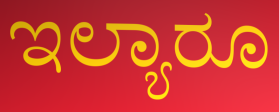
ಇಲ್ಯಾರೂ